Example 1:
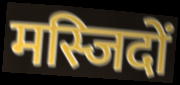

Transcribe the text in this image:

मस्‍जिदों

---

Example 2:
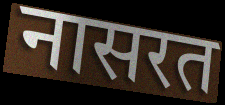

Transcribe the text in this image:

नासरत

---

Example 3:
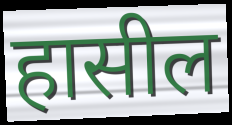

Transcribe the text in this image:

हासील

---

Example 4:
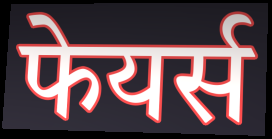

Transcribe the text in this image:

फेयर्स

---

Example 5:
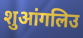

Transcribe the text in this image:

शुआंगलिउ